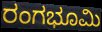
ರಂಗಭೂಮಿ